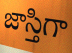
జాస్తిగా